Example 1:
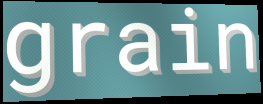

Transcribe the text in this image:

grain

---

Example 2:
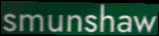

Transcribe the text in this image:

smunshaw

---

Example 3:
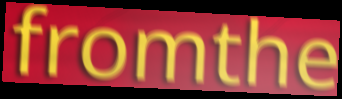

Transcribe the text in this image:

fromthe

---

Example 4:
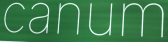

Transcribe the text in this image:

canum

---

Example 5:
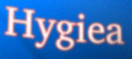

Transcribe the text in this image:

Hygiea